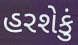
હરશેકું